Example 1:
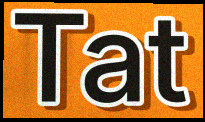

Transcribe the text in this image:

Tat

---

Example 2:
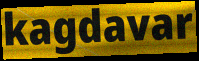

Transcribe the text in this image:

kagdavar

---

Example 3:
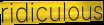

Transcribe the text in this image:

ridiculous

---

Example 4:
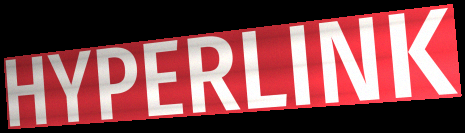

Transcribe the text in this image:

HYPERLINK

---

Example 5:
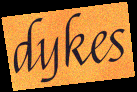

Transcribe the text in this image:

dykes